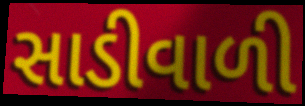
સાડીવાળી